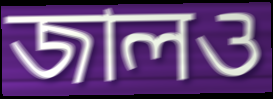
জালও